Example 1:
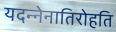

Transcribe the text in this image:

यदन्नेनातिरोहति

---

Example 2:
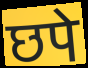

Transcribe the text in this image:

छपे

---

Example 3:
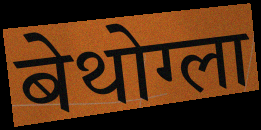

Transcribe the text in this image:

बेथोग्ला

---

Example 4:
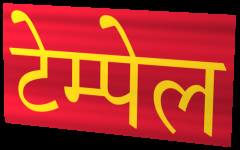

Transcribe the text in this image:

टेम्पेल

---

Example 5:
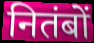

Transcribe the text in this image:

नितंबों